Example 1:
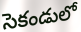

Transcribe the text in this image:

సెకండులో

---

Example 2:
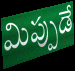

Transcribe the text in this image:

మిప్పుడే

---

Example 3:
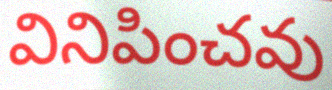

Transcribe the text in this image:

వినిపించవు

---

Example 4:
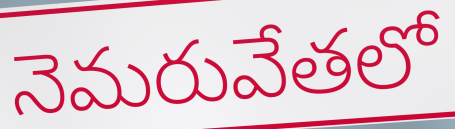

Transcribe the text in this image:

నెమరువేతలో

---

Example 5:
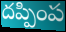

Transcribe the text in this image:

దప్పింప